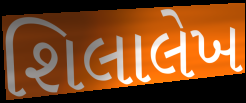
શિલાલેખ